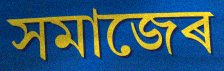
সমাজেৰ